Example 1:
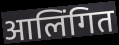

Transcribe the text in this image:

आलिंगित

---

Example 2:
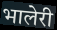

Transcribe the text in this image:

भालेरी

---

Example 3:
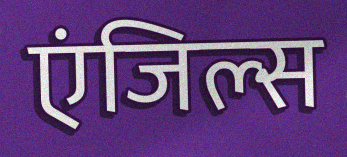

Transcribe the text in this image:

एंजिल्‍स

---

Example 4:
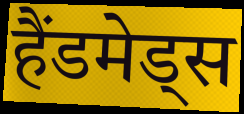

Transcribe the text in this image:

हैंडमेड्स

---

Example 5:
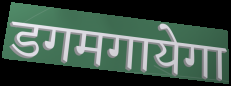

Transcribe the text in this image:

डगमगायेगा